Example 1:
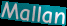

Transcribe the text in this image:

Mallan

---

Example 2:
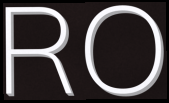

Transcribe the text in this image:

RO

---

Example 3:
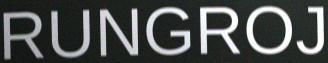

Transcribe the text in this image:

RUNGROJ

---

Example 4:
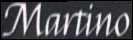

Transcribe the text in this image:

Martino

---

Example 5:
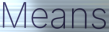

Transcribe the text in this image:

Means